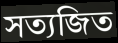
সত্যজিত